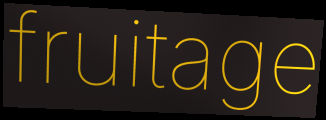
fruitage